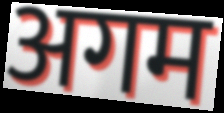
अगम